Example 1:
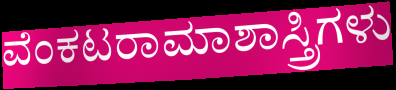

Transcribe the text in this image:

ವೆಂಕಟರಾಮಾಶಾಸ್ತ್ರಿಗಳು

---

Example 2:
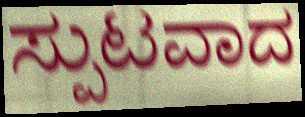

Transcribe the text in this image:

ಸ್ಪುಟವಾದ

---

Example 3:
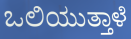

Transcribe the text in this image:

ಒಲಿಯುತ್ತಾಳೆ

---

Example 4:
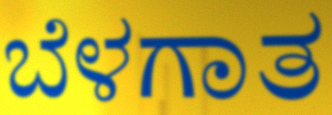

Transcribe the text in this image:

ಬೆಳಗಾತ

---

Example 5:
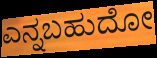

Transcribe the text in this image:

ಎನ್ನಬಹುದೋ